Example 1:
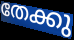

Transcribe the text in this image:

തേക്കു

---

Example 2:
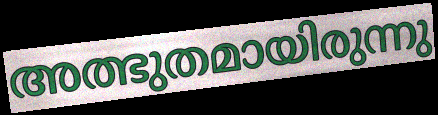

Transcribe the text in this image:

അത്ഭുതമായിരുന്നു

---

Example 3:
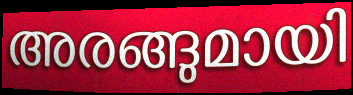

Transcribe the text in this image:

അരങ്ങുമായി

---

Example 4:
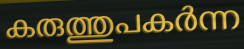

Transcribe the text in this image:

കരുത്തുപകർന്ന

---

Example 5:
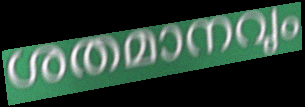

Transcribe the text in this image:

ശതമാനവും